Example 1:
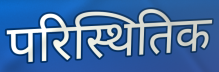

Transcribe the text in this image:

परिस्थितिक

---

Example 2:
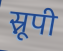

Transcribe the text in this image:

स्नूपी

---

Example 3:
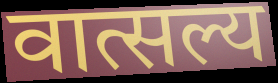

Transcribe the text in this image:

वात्सल्य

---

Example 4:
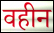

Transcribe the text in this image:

वहीन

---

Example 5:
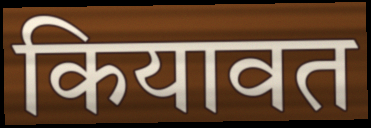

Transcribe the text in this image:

कियावत